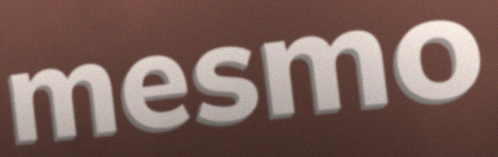
mesmo